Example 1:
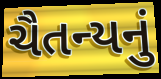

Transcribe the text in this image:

ચૈતન્યનું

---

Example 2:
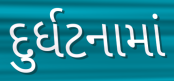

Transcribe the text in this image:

દુર્ધટનામાં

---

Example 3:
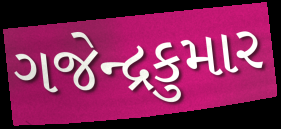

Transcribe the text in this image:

ગજેન્દ્રકુમાર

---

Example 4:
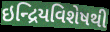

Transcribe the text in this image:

ઇન્દ્રિયવિશેષથી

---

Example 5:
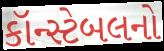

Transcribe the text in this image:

કૉન્સ્ટેબલનો